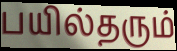
பயில்தரும்